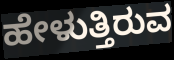
ಹೇಳುತ್ತಿರುವ